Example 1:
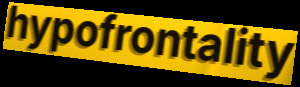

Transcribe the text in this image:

hypofrontality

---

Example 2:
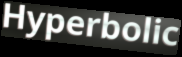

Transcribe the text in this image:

Hyperbolic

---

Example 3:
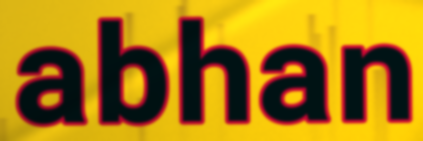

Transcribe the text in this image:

abhan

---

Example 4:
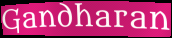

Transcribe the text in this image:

Gandharan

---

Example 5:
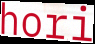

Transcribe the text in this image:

hori